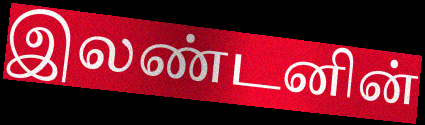
இலண்டனின்